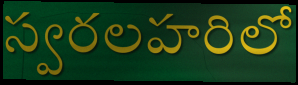
స్వరలహరిలో